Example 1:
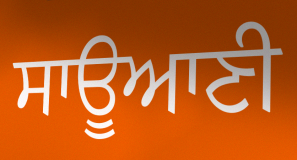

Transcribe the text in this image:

ਸਾਊਆਣੀ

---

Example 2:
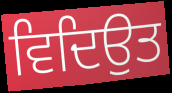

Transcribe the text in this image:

ਵਿਦਿਉਤ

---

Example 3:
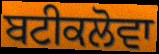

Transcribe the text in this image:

ਬਟੀਕਲੋਵਾ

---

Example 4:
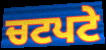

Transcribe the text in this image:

ਚਟਪਟੇ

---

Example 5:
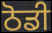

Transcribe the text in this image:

ਠੋਡੀ